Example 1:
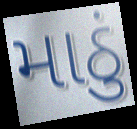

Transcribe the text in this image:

માઠું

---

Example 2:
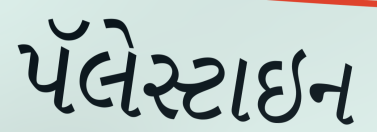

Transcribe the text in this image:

પૅલેસ્ટાઇન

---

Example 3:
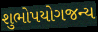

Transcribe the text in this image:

શુભોપયોગજન્ય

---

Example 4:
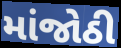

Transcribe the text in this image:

માંજોઠી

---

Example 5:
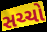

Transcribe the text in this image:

સચ્ચો